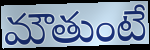
మౌతుంటే